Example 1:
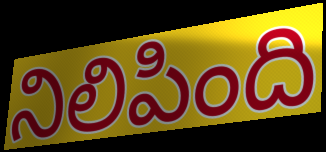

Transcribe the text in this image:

నిలిపింది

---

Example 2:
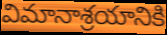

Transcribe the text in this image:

విమానాశ్రయానికి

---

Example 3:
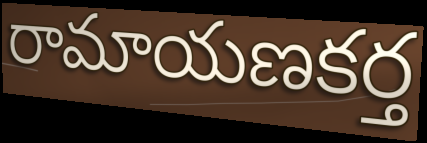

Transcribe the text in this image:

రామాయణకర్త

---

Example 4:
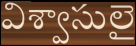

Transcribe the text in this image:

విశ్వాసులై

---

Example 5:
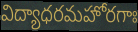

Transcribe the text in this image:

విద్యాధరమహోరగాః